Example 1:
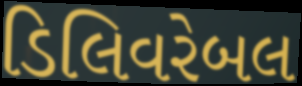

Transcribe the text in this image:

ડિલિવરેબલ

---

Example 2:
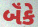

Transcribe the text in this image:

બૅંકે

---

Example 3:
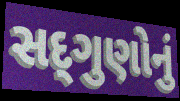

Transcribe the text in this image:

સદ્‌ગુણોનું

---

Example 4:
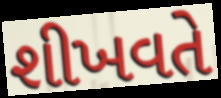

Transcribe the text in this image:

શીખવતે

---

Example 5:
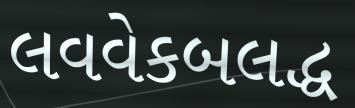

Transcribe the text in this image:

લવવેકબલદ્ધ